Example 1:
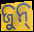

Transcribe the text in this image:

ଜୁନ୍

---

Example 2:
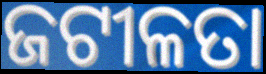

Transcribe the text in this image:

ଜଟୀଳତା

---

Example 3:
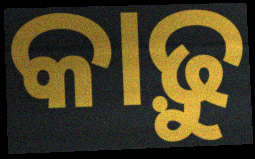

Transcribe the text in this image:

କାଢ଼ୁ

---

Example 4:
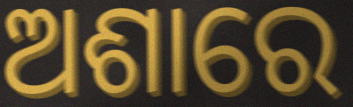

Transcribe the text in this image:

ଅଶାରେ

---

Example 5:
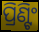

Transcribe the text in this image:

ପ୍ରିଣ୍ଟିଂ